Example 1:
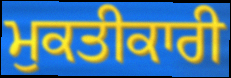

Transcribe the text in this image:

ਮੁਕਤੀਕਾਰੀ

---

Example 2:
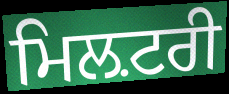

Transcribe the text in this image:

ਮਿਲ਼ਟਰੀ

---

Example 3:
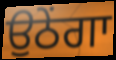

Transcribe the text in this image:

ਉਠੇਂਗਾ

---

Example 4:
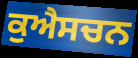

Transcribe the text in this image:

ਕੁਐਸਚਨ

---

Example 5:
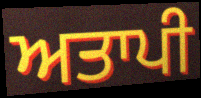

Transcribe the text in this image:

ਅਤਾਪੀ